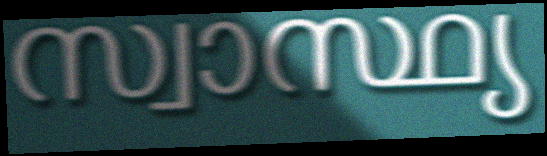
സ്വാസ്ഥ്യ